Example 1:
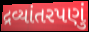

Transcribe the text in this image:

દ્રવ્યાંતરપણું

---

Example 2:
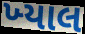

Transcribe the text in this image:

ખ્‍યાલ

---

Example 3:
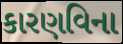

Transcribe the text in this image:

કારણવિના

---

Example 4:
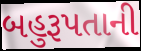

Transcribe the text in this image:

બહુરૂપતાની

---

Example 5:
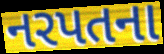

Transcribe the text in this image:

નરપતના